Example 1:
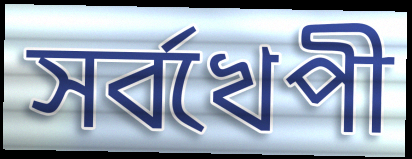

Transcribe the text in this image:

সর্বখেপী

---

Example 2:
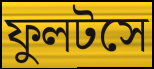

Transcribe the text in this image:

ফুলটসে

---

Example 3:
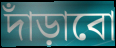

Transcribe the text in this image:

দাঁড়াবো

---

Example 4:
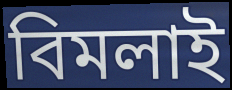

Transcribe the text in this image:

বিমলাই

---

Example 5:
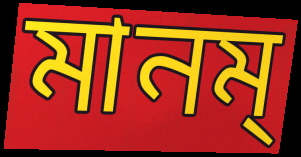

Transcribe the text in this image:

মানম্